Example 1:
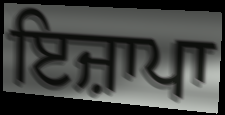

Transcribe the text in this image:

ਇਜ਼ਾਪਾ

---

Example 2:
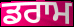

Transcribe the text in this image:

ਡਰਾਮ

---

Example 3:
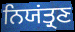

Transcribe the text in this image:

ਨਿਯਂਤ੍ਰਣ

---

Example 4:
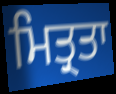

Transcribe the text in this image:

ਮਿਤ੍ਰਤਾ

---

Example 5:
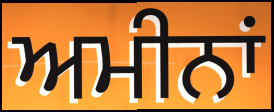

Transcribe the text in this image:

ਅਮੀਨਾਂ